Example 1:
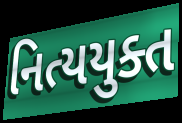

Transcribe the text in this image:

નિત્યયુક્ત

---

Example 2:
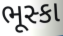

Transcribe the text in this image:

ભૂસ્કા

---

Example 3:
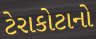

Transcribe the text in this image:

ટેરાકોટાનો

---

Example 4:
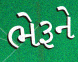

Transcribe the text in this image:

ભેરૂને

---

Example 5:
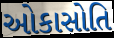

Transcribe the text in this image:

ઓકાસોતિ